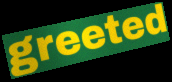
greeted